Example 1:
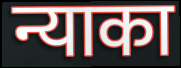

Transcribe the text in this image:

न्याका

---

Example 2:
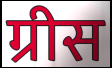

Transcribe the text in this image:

ग्रीस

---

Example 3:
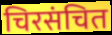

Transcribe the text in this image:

चिरसंचित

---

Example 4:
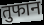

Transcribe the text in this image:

तुफान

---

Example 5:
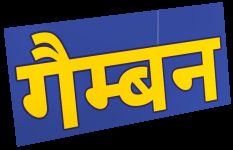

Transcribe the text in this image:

गैम्बन